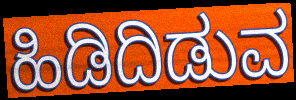
ಹಿಡಿದಿಡುವ